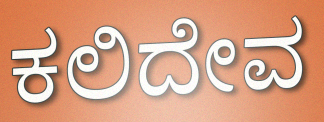
ಕಲಿದೇವ